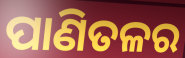
ପାଣିତଳର